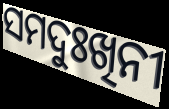
ସମଦୁଃଖିନୀ